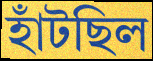
হাঁটছিল